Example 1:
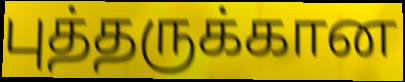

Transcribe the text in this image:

புத்தருக்கான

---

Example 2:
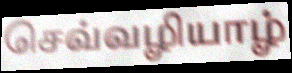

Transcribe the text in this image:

செவ்வழியாழ்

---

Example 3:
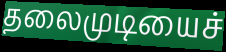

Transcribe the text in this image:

தலைமுடியைச்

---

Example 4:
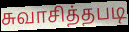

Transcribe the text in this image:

சுவாசித்தபடி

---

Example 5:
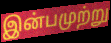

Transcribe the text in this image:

இன்பமுற்று